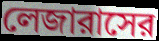
লেজারাসের